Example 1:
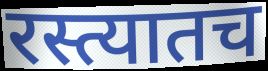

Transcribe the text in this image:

रस्त्यातच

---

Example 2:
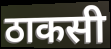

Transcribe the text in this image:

ठाकसी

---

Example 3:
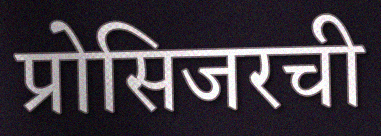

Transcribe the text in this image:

प्रोसिजरची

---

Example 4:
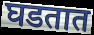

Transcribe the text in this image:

घडतात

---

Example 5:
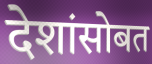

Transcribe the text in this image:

देशांसोबत